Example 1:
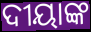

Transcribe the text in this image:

ଦୀୟାଙ୍କ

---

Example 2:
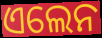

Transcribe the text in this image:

ଏଲେନ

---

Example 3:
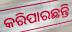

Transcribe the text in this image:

କରିପାରଛନ୍ତି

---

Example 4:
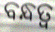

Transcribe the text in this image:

ବନ୍ଧତ୍ୱ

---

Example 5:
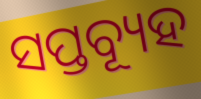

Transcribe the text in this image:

ସପ୍ତବ୍ୟୂହ